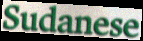
Sudanese